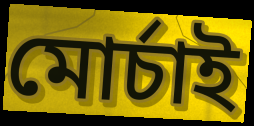
মোর্চাই